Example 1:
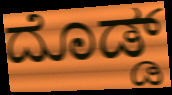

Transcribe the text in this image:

ದೊಡ್ಡ್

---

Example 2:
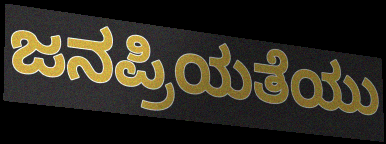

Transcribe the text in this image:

ಜನಪ್ರಿಯತೆಯು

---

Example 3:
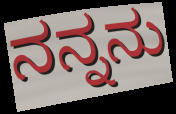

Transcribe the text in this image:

ನನ್ನನು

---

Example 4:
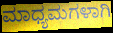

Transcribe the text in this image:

ಮಾಧ್ಯಮಗಳಾಗಿ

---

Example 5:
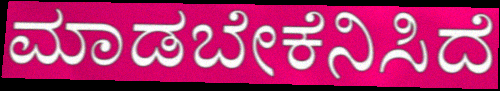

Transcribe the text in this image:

ಮಾಡಬೇಕೆನಿಸಿದೆ